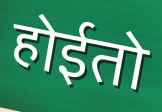
होईतो